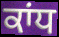
ਕਾਂਧ